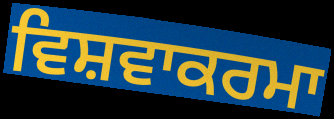
ਵਿਸ਼ਵਾਕਰਮਾ